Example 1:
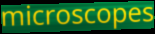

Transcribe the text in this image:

microscopes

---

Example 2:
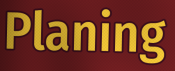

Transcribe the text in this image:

Planing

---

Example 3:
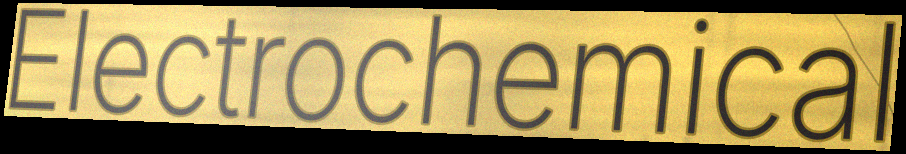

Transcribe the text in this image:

Electrochemical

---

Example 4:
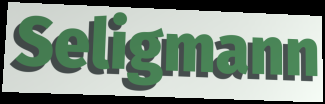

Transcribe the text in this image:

Seligmann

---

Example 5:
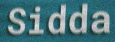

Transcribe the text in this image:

Sidda